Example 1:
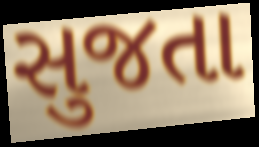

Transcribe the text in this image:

સુજતા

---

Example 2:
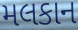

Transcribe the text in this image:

મલકાન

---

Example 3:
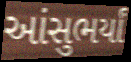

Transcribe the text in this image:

આંસુભર્યાં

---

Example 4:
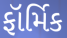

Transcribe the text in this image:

ફૉર્મિક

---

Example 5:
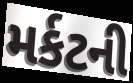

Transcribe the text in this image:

મર્કટની